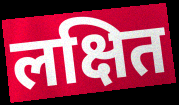
लक्षित